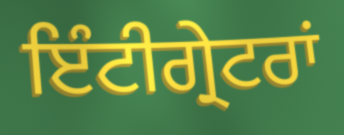
ਇੰਟੀਗ੍ਰੇਟਰਾਂ